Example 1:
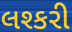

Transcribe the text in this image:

લશ્કરી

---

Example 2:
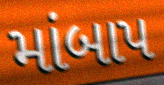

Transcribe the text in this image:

માંબાપ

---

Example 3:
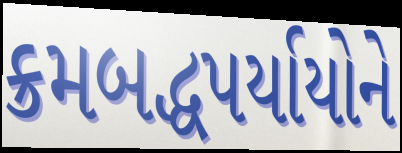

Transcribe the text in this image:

ક્રમબદ્ધપર્યાયોને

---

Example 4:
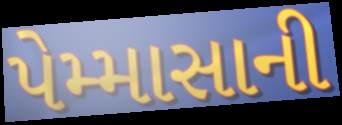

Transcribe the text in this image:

પેમ્માસાની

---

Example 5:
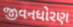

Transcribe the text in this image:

જીવનધોરણ